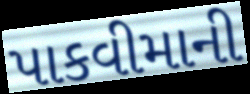
પાકવીમાની